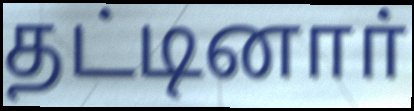
தட்டினார்